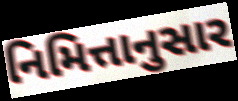
નિમિત્તાનુસાર